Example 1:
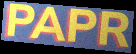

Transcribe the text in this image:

PAPR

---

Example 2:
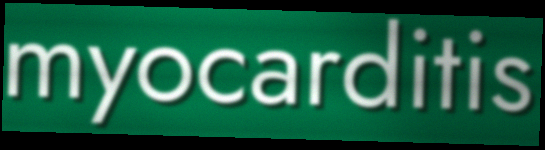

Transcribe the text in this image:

myocarditis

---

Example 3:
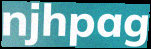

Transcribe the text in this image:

njhpag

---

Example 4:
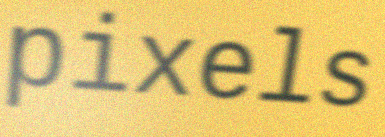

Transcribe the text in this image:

pixels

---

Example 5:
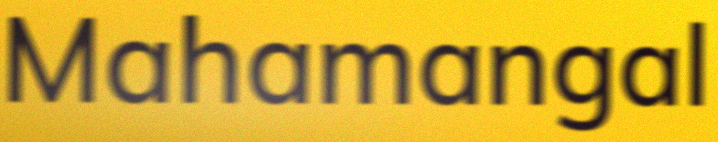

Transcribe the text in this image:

Mahamangal